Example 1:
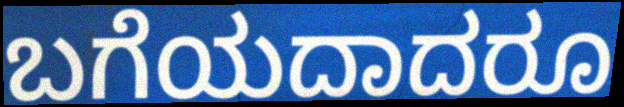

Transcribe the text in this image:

ಬಗೆಯದಾದರೂ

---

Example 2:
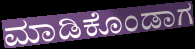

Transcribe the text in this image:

ಮಾಡಿಕೊಂಡಾಗ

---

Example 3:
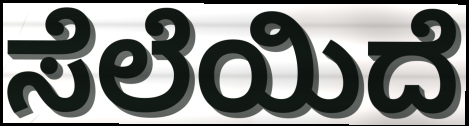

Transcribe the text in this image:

ಸೆಲೆಯಿದೆ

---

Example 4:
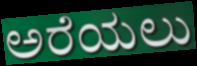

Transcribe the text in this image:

ಅರೆಯಲು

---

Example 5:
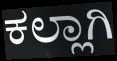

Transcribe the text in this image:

ಕಲ್ಲಾಗಿ